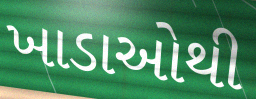
ખાડાઓથી